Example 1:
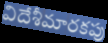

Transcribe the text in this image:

విదేశీమారకపు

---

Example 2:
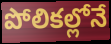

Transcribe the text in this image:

పోలికల్లోనే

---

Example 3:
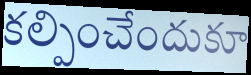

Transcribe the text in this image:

కల్పించేందుకూ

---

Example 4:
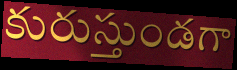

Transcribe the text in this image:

కురుస్తుండగా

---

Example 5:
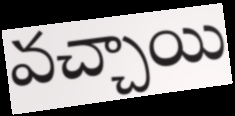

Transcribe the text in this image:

వచ్చాయి